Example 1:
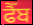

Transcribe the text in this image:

ਫੈੱਬ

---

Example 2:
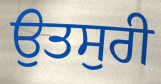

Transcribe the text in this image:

ਉਤਸੁਰੀ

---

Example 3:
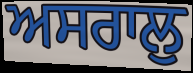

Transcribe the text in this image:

ਅਸਰਾਲੁ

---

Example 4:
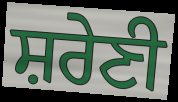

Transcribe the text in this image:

ਸ਼ਰੇਣੀ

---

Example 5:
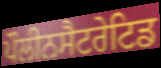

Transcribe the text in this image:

ਪੌਲੀਨਸੈਟਰੇਟਿਡ